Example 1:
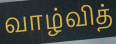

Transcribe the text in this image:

வாழ்வித்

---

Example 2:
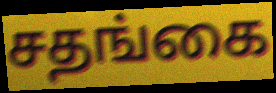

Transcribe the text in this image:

சதங்கை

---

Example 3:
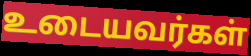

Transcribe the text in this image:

உடையவர்கள்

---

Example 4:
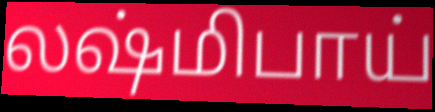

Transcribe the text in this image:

லஷ்மிபாய்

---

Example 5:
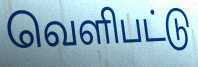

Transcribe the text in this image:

வெளிபட்டு